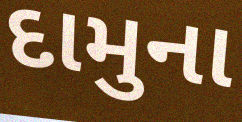
દામુના